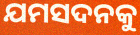
ଯମସଦନକୁ